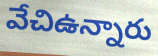
వేచిఉన్నారు